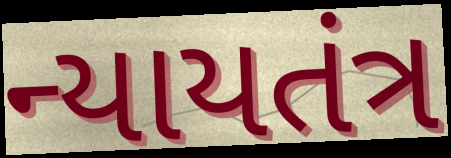
ન્યાયતંત્ર